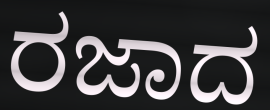
ರಜಾದ